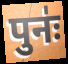
पुनः॑